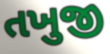
તખુજી